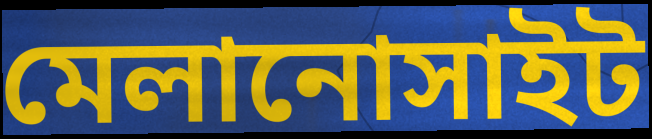
মেলানোসাইট